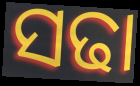
ସଢା